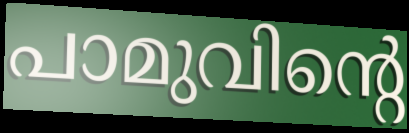
പാമുവിന്റെ